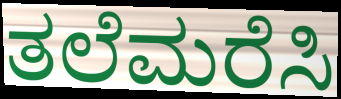
ತಲೆಮರೆಸಿ